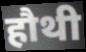
हौथी